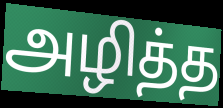
அழித்த